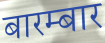
बारम्बार